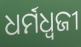
ଧର୍ମଧ୍ୱଜୀ